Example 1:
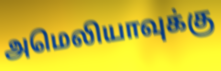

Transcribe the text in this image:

அமெலியாவுக்கு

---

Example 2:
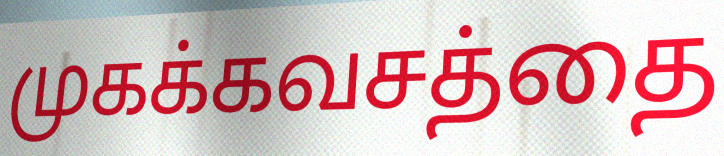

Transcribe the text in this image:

முகக்கவசத்தை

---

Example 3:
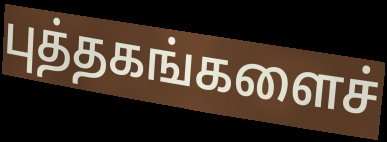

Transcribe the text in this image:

புத்தகங்களைச்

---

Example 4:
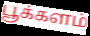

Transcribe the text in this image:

பூக்களம்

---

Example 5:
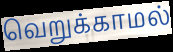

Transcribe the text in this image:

வெறுக்காமல்